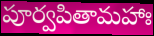
పూర్వపితామహాః